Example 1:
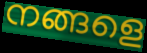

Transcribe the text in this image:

നങ്ങളെ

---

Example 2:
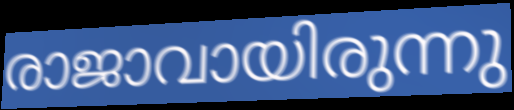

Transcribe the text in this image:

രാജാവായിരുന്നു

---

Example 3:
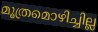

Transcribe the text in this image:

മൂത്രമൊഴിച്ചില്ല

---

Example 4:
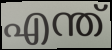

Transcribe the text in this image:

എന്ത്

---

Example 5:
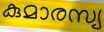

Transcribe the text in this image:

കുമാരസ്യ